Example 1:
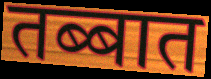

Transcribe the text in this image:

तब्बात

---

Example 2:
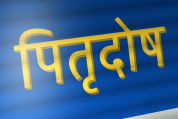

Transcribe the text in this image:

पितृदोष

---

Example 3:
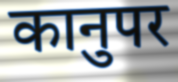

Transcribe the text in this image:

कानुपर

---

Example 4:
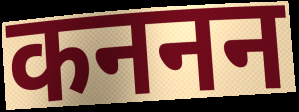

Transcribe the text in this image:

कननन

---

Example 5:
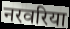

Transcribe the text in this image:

नरवरिया